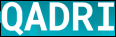
QADRI